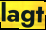
lagt